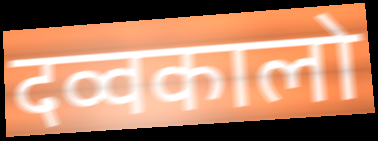
दव्वकालो